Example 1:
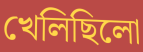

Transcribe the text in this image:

খেলিছিলো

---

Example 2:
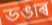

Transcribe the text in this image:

ভঙাৰ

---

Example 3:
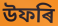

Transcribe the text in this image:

উফৰি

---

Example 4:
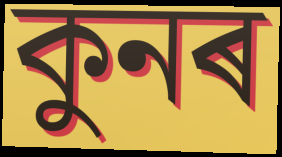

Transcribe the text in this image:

কুনৰ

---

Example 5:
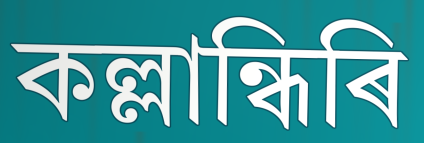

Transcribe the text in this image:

কল্লান্ধিৰি